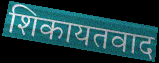
शिकायतवाद